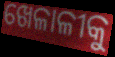
ଖେଳାଳୀକୁ